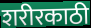
शरीरकाठी